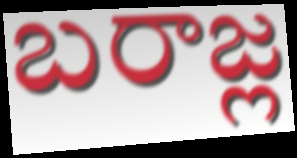
బరాజ్ల